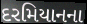
દરમિયાનના